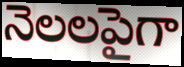
నెలలపైగా